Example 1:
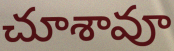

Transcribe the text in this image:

చూశావూ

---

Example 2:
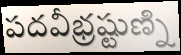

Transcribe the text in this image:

పదవీభ్రష్టుణ్ని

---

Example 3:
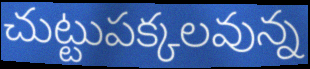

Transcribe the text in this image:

చుట్టుపక్కలవున్న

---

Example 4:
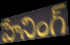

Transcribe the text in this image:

హేనింగ్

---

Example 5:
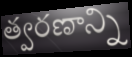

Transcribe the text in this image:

త్వరణాన్ని